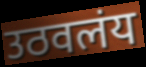
उठवलंय